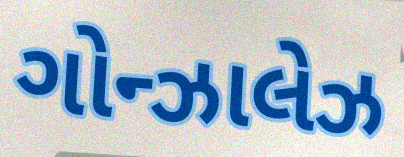
ગોન્ઝાલેઝ